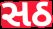
સઠ